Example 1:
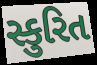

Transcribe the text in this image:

સ્કુરિત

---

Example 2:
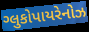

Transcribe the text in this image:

ગ્લુકોપાયરેનોઝ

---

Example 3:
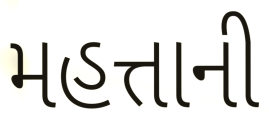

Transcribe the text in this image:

મહત્તાની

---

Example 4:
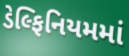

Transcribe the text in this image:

ડેલ્ફિનિયમમાં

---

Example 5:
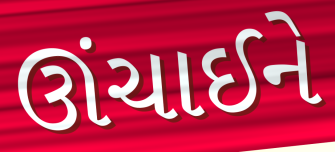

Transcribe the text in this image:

ઊંચાઈને